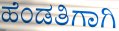
ಹೆಂಡತಿಗಾಗಿ